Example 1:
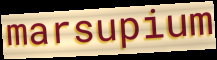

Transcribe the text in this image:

marsupium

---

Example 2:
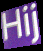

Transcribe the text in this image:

Hij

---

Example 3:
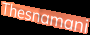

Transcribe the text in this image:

Thesnamani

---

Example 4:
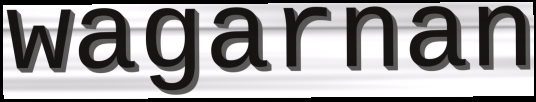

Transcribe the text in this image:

wagarnan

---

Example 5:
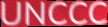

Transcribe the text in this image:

UNCCC